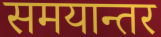
समयान्तर